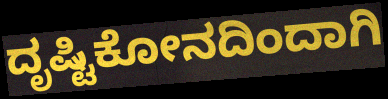
ದೃಷ್ಟಿಕೋನದಿಂದಾಗಿ